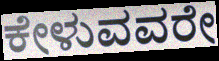
ಕೇಳುವವರೇ